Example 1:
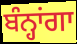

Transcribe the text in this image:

ਬੰਨ੍ਹਾਂਗਾ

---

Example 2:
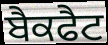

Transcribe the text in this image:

ਬੈਕਫੈਟ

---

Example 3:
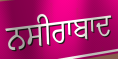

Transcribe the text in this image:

ਨਸੀਰਾਬਾਦ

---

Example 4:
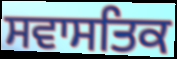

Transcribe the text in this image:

ਸਵਾਸਤਿਕ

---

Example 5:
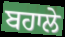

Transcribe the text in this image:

ਬਹਾਲੇ